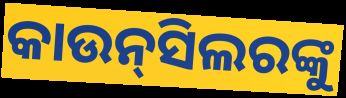
କାଉନ୍‌ସିଲରଙ୍କୁ